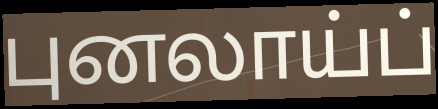
புனலாய்ப்